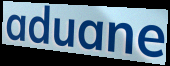
aduane